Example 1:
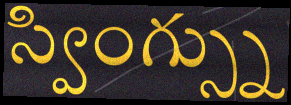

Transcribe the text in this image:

స్వింగ్స్ను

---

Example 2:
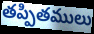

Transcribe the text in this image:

తప్పితములు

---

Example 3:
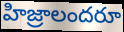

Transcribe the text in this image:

హిజ్రాలందరూ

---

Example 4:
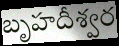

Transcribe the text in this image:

బృహదీశ్వర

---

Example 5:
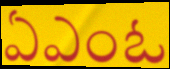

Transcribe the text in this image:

ఏఎంఓ